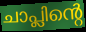
ചാപ്ലിന്റെ